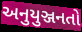
અનુયુઞ્જનતો